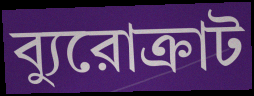
ব্যুরোক্রাট